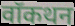
वॉकथन